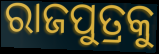
ରାଜପୁତ୍ରକୁ